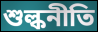
শুল্কনীতি